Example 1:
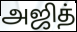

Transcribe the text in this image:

அஜித்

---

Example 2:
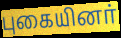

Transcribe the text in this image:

புகையினர்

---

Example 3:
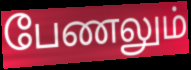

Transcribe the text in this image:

பேணலும்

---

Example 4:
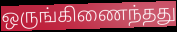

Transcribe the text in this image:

ஒருங்கிணைந்தது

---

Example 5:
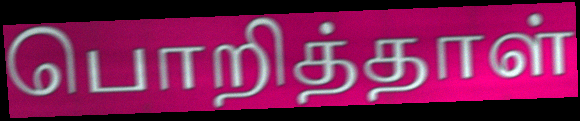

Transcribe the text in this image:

பொறித்தாள்